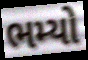
ભમ્યો